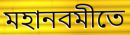
মহানবমীতে